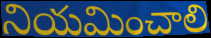
నియమించాలి